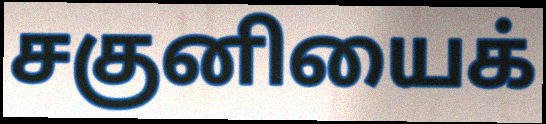
சகுனியைக்